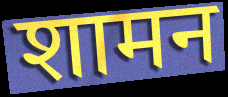
शामन